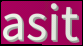
asit